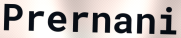
Prernani